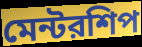
মেন্টরশিপ